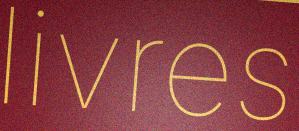
livres